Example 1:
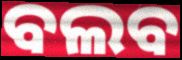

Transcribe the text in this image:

ବଲବ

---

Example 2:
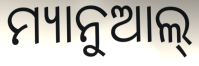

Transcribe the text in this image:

ମ୍ୟାନୁଆଲ୍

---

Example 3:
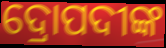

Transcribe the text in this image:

ଦ୍ରୋପଦୀଙ୍କ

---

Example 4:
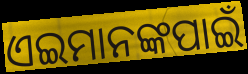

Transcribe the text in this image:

ଏଇମାନଙ୍କପାଇଁ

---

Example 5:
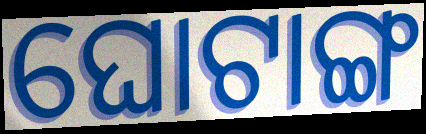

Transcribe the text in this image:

ଘୋଟାଙ୍ଗ